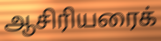
ஆசிரியரைக்